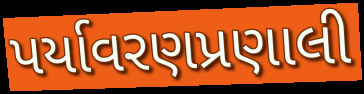
પર્યાવરણપ્રણાલી